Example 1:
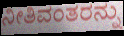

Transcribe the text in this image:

ನೀತಿವಂತರನ್ನು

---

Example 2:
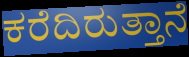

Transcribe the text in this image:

ಕರೆದಿರುತ್ತಾನೆ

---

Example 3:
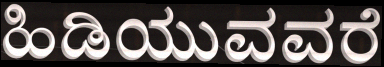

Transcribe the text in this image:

ಹಿಡಿಯುವವರೆ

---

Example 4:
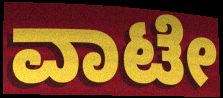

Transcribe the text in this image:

ವಾಟೇ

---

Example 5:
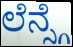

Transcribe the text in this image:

ಲೆನ್ಸ್ಗೆ